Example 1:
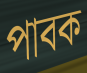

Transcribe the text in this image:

পাবক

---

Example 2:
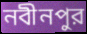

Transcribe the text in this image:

নবীনপুর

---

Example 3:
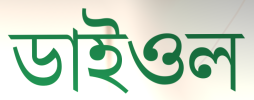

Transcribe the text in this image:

ডাইওল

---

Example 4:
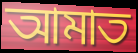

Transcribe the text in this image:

আমাত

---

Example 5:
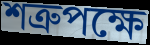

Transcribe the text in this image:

শত্রুপক্ষে